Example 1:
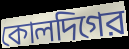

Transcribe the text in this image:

কোলদিগের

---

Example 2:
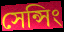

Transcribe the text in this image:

সেন্সিং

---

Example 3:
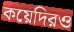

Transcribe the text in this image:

কয়েদিরও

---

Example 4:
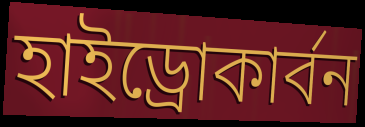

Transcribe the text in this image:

হাইড্রোকার্বন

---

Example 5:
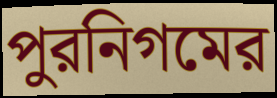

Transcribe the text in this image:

পুরনিগমের